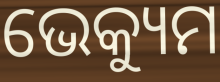
ଭେକ୍ୟୁମ